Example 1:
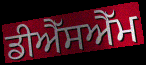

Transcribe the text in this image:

ਡੀਐੱਸਐੱਮ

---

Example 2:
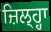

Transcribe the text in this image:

ਜ਼ਿਲ੍ਹ੍ਹਾ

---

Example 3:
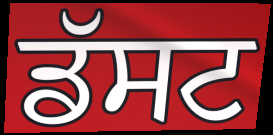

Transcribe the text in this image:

ਡੱਸਟ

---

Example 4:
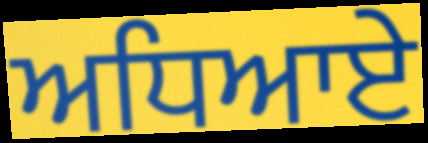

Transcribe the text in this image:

ਅਧਿਆਏ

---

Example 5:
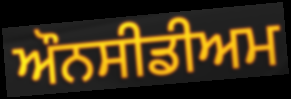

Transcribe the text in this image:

ਔਨਸੀਡੀਅਮ